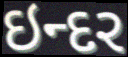
ઇન્દર